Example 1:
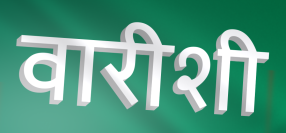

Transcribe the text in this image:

वारीशी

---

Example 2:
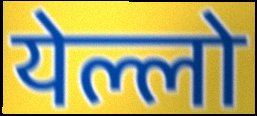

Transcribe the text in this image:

येल्लो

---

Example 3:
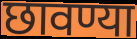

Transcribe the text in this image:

छावण्या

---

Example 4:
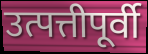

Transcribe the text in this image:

उत्पत्तीपूर्वी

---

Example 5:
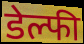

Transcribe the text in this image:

डेल्फी